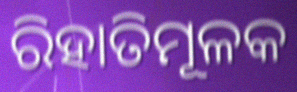
ରିହାତିମୂଳକ